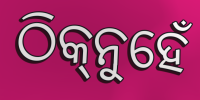
ଠିକ୍‌ନୁହେଁ